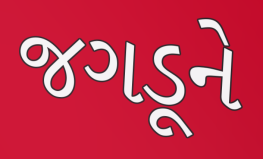
જગડૂને